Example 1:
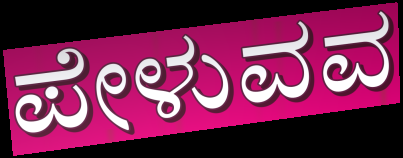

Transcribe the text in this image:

ಪೇಳುವವ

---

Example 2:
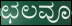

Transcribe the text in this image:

ಛಲವೂ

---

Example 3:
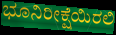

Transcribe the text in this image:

ಭೂನಿರೀಕ್ಷೆಯಿರಲಿ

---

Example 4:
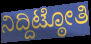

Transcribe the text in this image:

ನಿದ್ದಿಟ್ಠೋತಿ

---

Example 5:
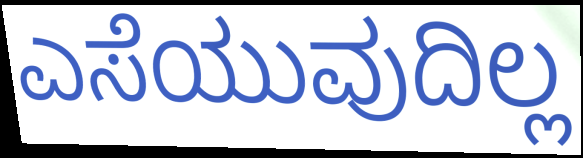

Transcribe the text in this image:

ಎಸೆಯುವುದಿಲ್ಲ